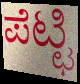
ಪೆಟ್ಟಿ